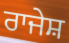
ਰਾਜੇਸ਼